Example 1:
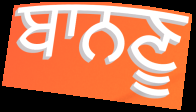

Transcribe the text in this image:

ਬਾਨਣੂ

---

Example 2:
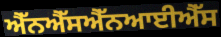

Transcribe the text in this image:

ਐੱਨਐੱਸਐੱਨਆਈਐੱਸ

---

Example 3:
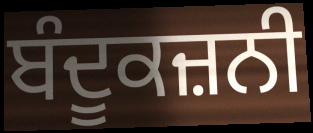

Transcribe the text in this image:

ਬੰਦੂਕਜ਼ਨੀ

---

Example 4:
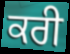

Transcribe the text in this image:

ਕਰੀ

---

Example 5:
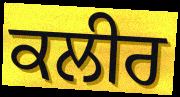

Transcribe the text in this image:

ਕਲੀਰ